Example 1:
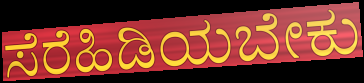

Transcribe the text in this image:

ಸೆರೆಹಿಡಿಯಬೇಕು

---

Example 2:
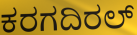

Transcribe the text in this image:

ಕರಗದಿರಲ್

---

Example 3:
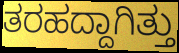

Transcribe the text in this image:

ತರಹದ್ದಾಗಿತ್ತು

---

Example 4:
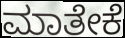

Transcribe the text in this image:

ಮಾತೇಕೆ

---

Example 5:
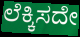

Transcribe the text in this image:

ಲೆಕ್ಕಿಸದೇ